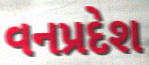
વનપ્રદેશ